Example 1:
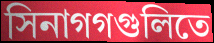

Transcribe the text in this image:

সিনাগগগুলিতে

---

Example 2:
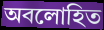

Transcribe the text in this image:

অবলোহিত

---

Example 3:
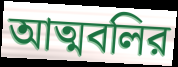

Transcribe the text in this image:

আত্মবলির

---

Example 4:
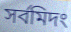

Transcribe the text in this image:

সর্বমিদং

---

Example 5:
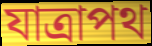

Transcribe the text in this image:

যাত্রাপথ